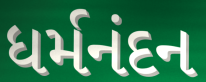
ધર્મનંદન